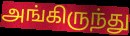
அங்கிருந்து